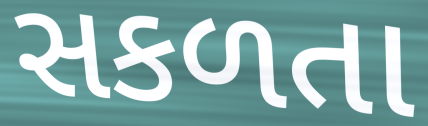
સકળતા